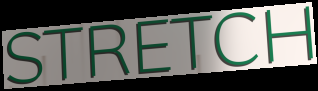
STRETCH